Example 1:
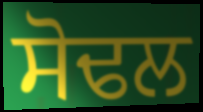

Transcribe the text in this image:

ਸੋਢਲ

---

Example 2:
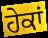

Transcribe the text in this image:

ਹੇਕਾਂ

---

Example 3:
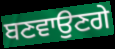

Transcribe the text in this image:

ਬਣਵਾਉਣਗੇ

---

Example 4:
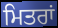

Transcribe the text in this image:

ਮਿਤਰਾਂ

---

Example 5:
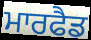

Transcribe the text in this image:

ਮਾਰਫੈਡ